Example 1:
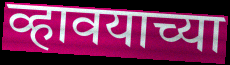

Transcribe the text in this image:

व्हावयाच्या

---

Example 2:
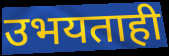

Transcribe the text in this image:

उभयताही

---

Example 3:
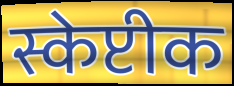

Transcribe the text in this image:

स्केप्टीक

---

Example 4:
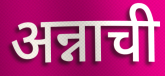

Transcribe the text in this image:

अन्नाची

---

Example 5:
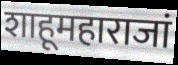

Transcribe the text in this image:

शाहूमहाराजां